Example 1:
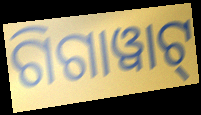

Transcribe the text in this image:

ଗିଗାୱାଟ୍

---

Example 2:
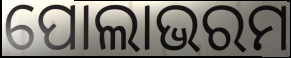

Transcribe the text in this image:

ପୋଲାଭରମ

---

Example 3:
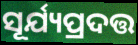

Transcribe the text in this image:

ସୂର୍ଯ୍ୟପ୍ରଦତ୍ତ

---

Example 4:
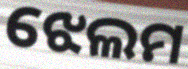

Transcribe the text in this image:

ଝେଲମ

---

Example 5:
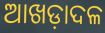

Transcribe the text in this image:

ଆଖଡ଼ାଦଳ